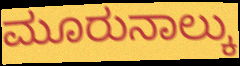
ಮೂರುನಾಲ್ಕು